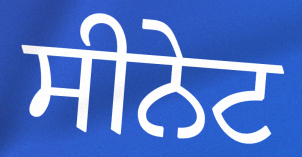
ਸੀਨੇਟ